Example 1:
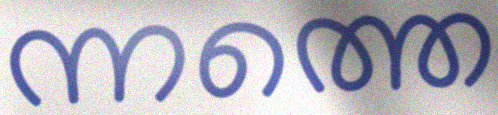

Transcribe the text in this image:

ന്നത്തെ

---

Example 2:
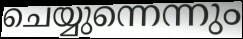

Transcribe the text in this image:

ചെയ്യുന്നെന്നും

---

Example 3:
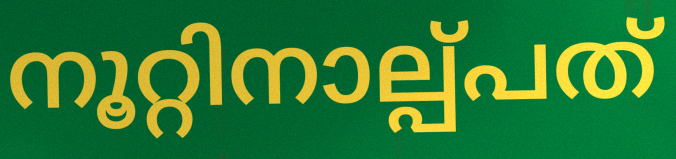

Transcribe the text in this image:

നൂറ്റിനാല്പ്പത്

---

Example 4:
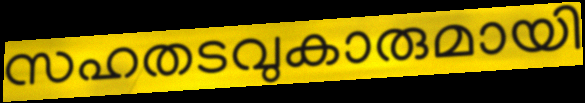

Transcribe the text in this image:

സഹതടവുകാരുമായി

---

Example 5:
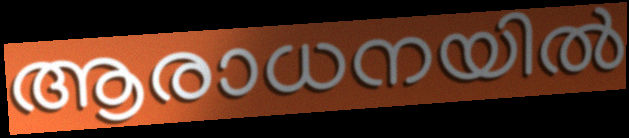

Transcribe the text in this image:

ആരാധനയിൽ